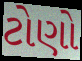
ટોણો